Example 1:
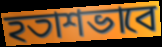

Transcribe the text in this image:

হতাশভাবে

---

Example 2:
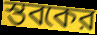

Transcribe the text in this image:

স্তবকের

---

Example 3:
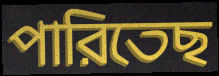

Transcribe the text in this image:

পারিতেছ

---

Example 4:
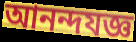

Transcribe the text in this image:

আনন্দযজ্ঞ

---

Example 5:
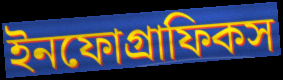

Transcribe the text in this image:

ইনফোগ্রাফিকস